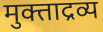
मुक्ताद्रव्य